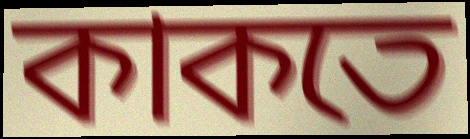
কাকতে